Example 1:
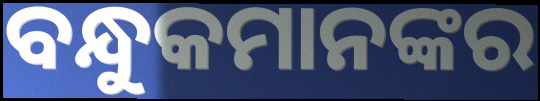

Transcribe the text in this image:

ବନ୍ଧୁକମାନଙ୍କର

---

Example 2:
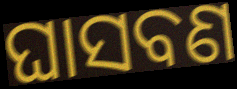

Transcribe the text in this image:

ଘାସବଣ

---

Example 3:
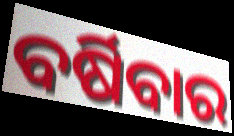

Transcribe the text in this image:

ବର୍ଷିବାର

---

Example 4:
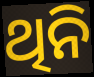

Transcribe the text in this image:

ଥିନି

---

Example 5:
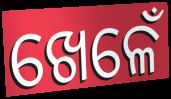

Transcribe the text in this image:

ଖେଳେଁ